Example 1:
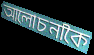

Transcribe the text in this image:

আলোচনাকৈ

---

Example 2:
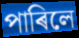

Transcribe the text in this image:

পাৰিলে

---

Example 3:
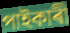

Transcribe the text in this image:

পাইকাৰী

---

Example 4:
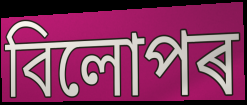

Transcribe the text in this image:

বিলোপৰ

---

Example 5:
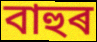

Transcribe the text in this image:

বাহুৰ